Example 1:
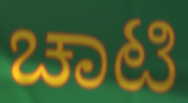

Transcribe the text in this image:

ಚಾಟಿ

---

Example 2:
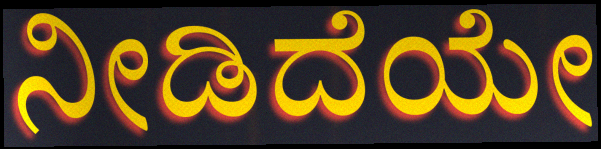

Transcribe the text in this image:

ನೀಡಿದೆಯೇ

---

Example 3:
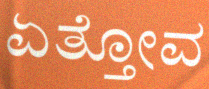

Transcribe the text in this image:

ಏತ್ತೋವ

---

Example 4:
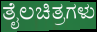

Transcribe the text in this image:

ತೈಲಚಿತ್ರಗಳು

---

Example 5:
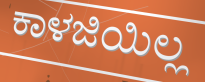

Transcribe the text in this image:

ಕಾಳಜಿಯಿಲ್ಲ